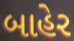
બાહેર